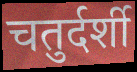
चतुर्दर्शी